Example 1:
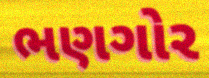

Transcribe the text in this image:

ભણગોર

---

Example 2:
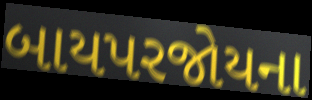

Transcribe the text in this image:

બાયપરજોયના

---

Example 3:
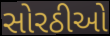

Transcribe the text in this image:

સોરઠીઓ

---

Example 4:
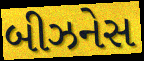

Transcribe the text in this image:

બીઝનેસ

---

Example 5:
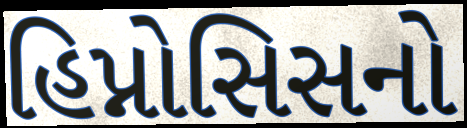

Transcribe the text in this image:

હિપ્નોસિસનો